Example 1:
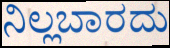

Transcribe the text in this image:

ನಿಲ್ಲಬಾರದು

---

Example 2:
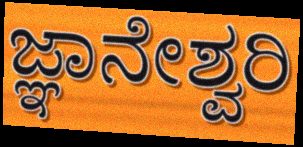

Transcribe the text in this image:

ಜ್ಞಾನೇಶ್ವರಿ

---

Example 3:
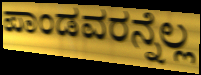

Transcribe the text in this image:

ಪಾಂಡವರನ್ನೆಲ್ಲ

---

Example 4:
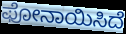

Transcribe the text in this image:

ಫೋನಾಯಿಸಿದೆ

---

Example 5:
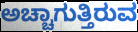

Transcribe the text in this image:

ಅಚ್ಚಾಗುತ್ತಿರುವ